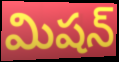
మిషన్